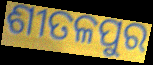
ଶୀତଳପୁର